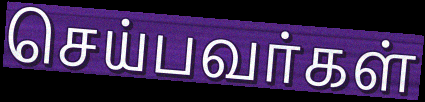
செய்பவர்கள்